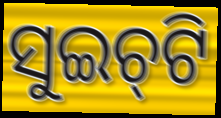
ସୁଇଚ୍‌ଟି